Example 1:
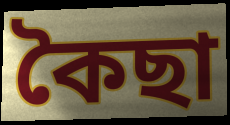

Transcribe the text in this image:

কৈছা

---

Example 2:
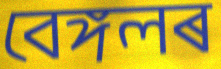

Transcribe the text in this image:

বেঙ্গলৰ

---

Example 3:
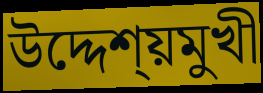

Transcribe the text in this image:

উদ্দেশ্য়মুখী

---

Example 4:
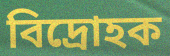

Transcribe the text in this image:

বিদ্ৰোহক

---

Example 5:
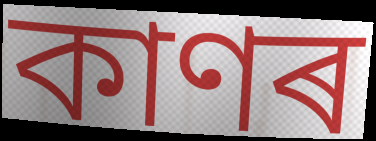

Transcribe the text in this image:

কাণৰ